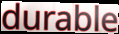
durable